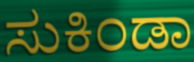
ಸುಕಿಂಡಾ